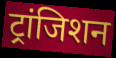
ट्रांजिशन